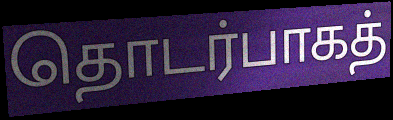
தொடர்பாகத்